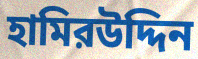
হামিরউদ্দিন